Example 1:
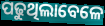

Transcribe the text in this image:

ପଢୁଥିଲାବେଳେ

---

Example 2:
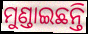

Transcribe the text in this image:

ମୁଣ୍ଡାଇଛନ୍ତି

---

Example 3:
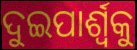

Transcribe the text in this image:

ଦୁଇପାର୍ଶ୍ବକୁ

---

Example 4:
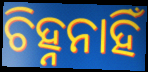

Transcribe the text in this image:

ଚିହ୍ନନାହିଁ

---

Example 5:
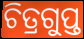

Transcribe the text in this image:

ଚିତ୍ରଗୁପ୍ତ